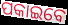
ପକାଇବେ